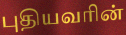
புதியவரின்